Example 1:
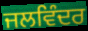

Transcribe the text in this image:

ਜਲਵਿੰਦਰ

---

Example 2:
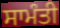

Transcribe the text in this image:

ਸਾਮੰਤੀ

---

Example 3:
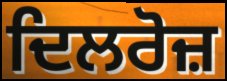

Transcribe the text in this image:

ਦਿਲਰੋਜ਼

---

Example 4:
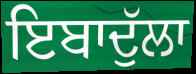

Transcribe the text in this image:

ਇਬਾਦੁੱਲਾ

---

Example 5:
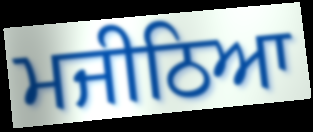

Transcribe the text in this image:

ਮਜੀਠਿਆ